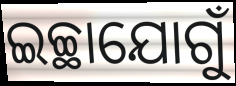
ଇଚ୍ଛାଯୋଗୁଁ